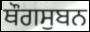
ਥੌਗਸੁਬਨ